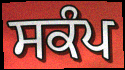
ਸਕੰਪ